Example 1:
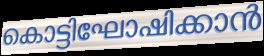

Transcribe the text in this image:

കൊട്ടിഘോഷിക്കാൻ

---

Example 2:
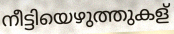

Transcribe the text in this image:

നീട്ടിയെഴുത്തുകള്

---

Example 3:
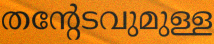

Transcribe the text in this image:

തന്റേടവുമുള്ള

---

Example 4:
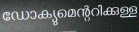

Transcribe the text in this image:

ഡോക്യുമെന്ററിക്കുള്ള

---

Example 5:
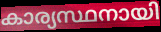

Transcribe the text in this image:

കാര്യസ്ഥനായി